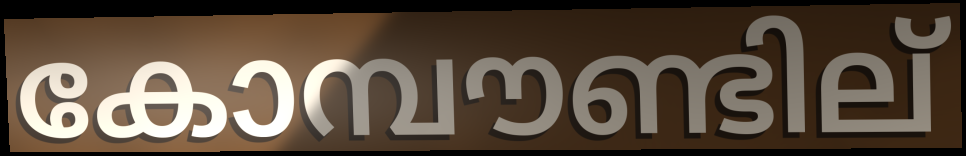
കോമ്പൗണ്ടില്